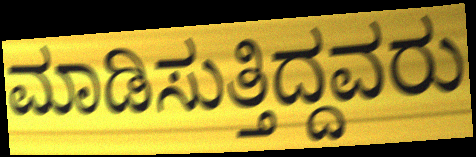
ಮಾಡಿಸುತ್ತಿದ್ದವರು